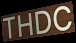
THDC